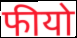
फीयो